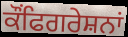
ਕੌਂਫਿਗਰੇਸ਼ਨਾਂ